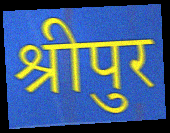
श्रीपुर